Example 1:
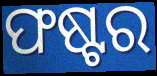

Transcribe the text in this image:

ଫଷ୍ଟର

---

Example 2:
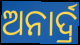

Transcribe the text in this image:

ଅନାର୍ଦ୍ର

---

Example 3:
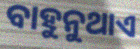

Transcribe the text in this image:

ବାହୁନୁଥାଏ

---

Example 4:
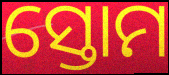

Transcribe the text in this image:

ସ୍ତୋମ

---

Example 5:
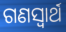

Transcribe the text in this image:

ଗଣସ୍ୱାର୍ଥ